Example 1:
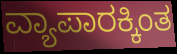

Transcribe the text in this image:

ವ್ಯಾಪಾರಕ್ಕಿಂತ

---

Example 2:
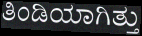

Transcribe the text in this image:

ತಿಂಡಿಯಾಗಿತ್ತು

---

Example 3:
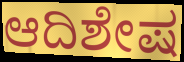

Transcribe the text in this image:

ಆದಿಶೇಷ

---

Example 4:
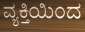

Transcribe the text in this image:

ವ್ಯಕ್ತಿಯಿಂದ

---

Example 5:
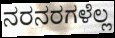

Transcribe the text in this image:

ನರನರಗಳೆಲ್ಲ